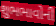
શુભભાવોની